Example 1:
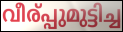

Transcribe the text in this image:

വീര്പ്പുമുട്ടിച്ച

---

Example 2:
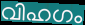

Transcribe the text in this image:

വിഹഗം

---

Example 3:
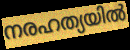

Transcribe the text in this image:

നരഹത്യയിൽ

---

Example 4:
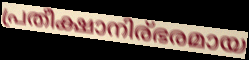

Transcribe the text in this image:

പ്രതീക്ഷാനിര്ഭരമായ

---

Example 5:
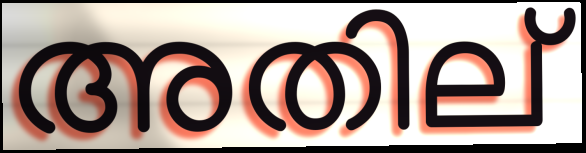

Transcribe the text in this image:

അതില്